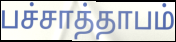
பச்சாத்தாபம்